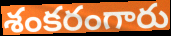
శంకరంగారు